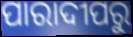
ପାରାଦୀପରୁ